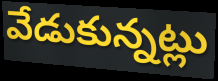
వేడుకున్నట్లు